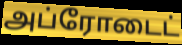
அப்ரோடைட்